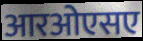
आरओएसए